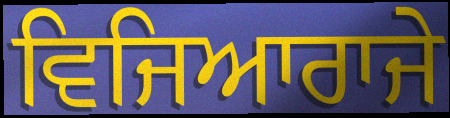
ਵਿਜਿਆਰਾਜੇ